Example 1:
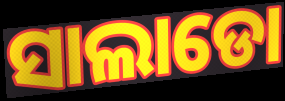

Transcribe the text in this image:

ସାଲାଡୋ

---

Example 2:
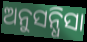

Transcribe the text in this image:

ଅନୁସନ୍ଧିସା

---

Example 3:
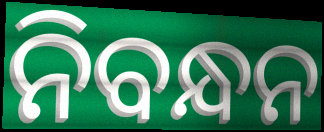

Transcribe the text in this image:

ନିବନ୍ଧନ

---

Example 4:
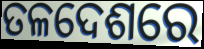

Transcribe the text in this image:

ତଳଦେଶରେ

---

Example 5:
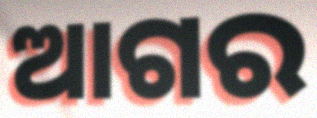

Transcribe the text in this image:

ଆଗର